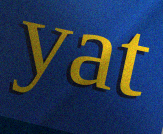
yat